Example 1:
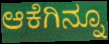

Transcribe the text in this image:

ಆಕೆಗಿನ್ನೂ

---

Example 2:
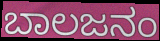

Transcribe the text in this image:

ಬಾಲಜನಂ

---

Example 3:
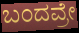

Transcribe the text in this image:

ಬಂದವ್ರೇ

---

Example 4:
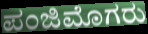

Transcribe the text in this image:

ಪಂಜಿಮೊಗರು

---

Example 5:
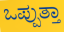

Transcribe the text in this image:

ಒಪ್ಪುತ್ತಾ